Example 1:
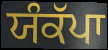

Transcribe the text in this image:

ਯੰਕੱਪਾ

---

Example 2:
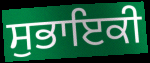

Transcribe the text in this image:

ਸੁਭਾਇਕੀ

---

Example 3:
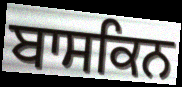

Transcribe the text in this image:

ਬਾਸਕਿਨ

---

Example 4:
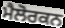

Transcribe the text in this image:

ਮੈਲੋਰਕਨ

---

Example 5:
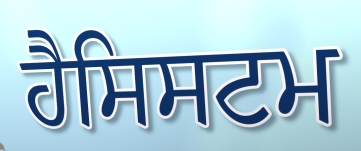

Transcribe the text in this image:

ਹੈਸਿਸਟਮ